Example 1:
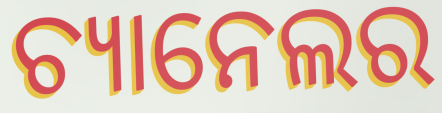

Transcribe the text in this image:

ଚ୍ୟାନେଲର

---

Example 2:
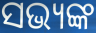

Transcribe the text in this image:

ସଭ୍ୟଙ୍କ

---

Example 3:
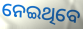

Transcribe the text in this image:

ନେଇଥିବେ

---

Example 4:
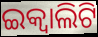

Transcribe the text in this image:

ଇକ୍ୱାଲିଟି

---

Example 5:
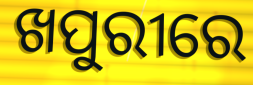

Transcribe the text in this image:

ଖପୁରୀରେ